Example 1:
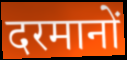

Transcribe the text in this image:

दरमानों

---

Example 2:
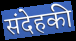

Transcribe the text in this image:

संदेहकी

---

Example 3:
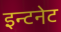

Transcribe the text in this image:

इन्टनेट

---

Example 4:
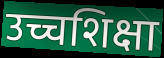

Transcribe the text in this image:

उच्चशिक्षा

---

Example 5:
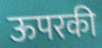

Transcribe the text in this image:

ऊपरकी